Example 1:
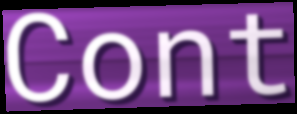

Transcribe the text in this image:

Cont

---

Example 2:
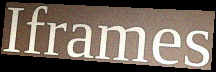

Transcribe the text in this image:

Iframes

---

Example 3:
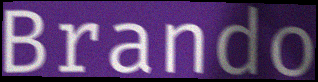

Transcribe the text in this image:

Brando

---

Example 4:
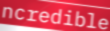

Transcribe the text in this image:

ncredible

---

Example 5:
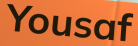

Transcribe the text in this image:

Yousaf